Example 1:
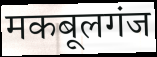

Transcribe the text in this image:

मकबूलगंज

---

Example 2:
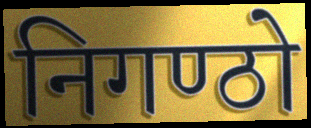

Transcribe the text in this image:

निगण्ठो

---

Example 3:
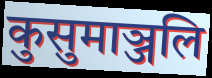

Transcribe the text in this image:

कुसुमाञ्जलि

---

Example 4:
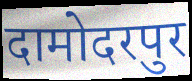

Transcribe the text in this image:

दामोदरपुर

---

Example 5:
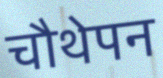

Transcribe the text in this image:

चौथेपन